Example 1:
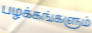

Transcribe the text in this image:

பழக்கங்களும்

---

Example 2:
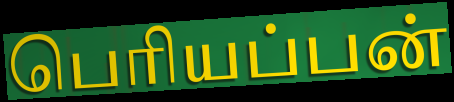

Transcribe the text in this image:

பெரியப்பன்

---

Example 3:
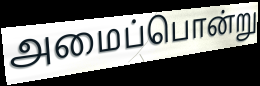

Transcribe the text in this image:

அமைப்பொன்று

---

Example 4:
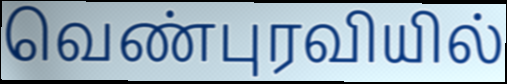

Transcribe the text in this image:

வெண்புரவியில்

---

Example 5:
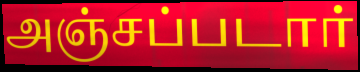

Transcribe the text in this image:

அஞ்சப்படார்